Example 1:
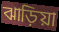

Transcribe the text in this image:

ঝাড়িয়া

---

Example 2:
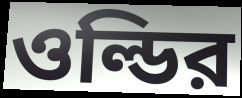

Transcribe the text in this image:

ওল্ডির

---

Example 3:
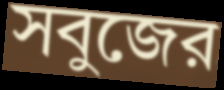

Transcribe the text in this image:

সবুজের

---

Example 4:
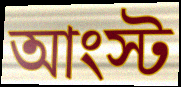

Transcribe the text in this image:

আংস্ট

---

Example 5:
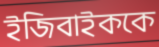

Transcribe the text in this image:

ইজিবাইককে